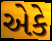
એકે